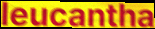
leucantha